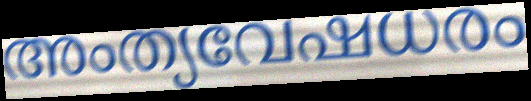
അംത്യവേഷധരം